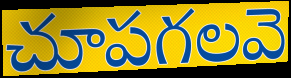
చూపగలవె